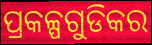
ପ୍ରକଳ୍ପଗୁଡିକର